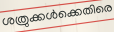
ശത്രുക്കൾക്കെതിരെ